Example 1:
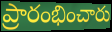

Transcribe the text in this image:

ప్రారంభించారు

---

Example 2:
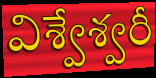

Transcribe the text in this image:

విశ్వేశ్వరీ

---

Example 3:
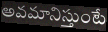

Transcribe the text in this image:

అవమానిస్తుంటే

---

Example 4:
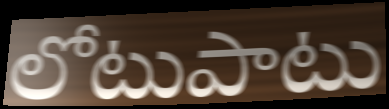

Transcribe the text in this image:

లోటుపాటు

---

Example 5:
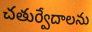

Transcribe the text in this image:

చతుర్వేదాలను